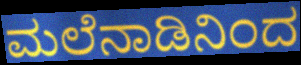
ಮಲೆನಾಡಿನಿಂದ